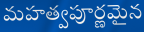
మహత్వపూర్ణమైన